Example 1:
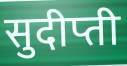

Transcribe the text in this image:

सुदीप्ती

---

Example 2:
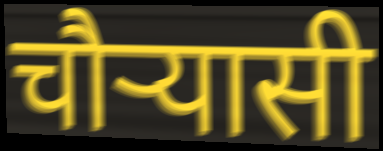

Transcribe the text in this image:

चौर्‍यासी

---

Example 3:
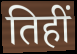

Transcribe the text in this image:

तिहीं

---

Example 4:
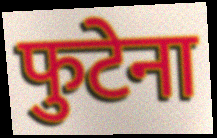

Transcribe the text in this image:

फुटेना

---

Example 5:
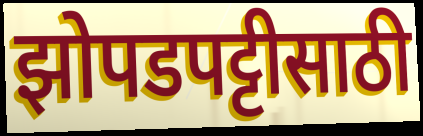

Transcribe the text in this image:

झोपडपट्टीसाठी